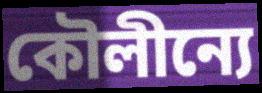
কৌলীন্যে